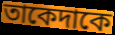
তাকেদাকে